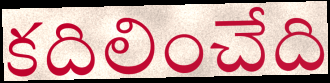
కదిలించేది